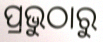
ପ୍ରଭୁଠାରୁ